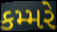
કમ્મરે